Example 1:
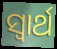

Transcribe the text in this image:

ସ୍ୱାର୍ଥ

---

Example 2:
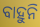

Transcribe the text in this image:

ବାହୁନି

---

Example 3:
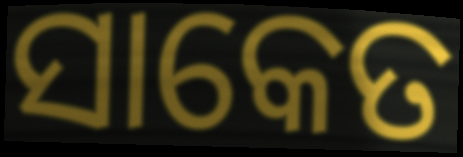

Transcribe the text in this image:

ସାକେତ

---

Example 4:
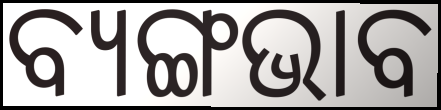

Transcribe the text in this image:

ବ୍ୟଙ୍ଗଭାବ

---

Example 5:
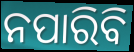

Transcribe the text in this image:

ନପାରିବି